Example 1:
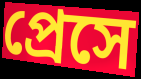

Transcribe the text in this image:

প্রেসে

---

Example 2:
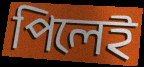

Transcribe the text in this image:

পিলেই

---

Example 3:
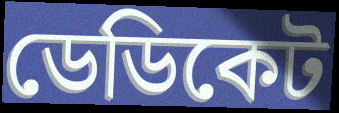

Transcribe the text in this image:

ডেডিকেট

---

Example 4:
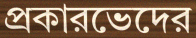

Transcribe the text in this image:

প্রকারভেদের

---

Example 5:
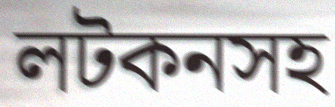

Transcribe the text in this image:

লটকনসহ